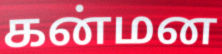
கன்மன